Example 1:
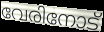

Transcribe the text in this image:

വേരിനോട്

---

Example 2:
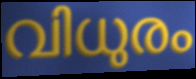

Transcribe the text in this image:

വിധുരം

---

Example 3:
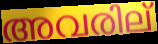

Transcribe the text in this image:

അവരില്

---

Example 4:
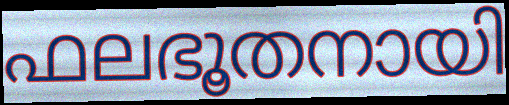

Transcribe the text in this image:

ഫലഭൂതനായി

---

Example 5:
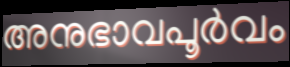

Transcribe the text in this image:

അനുഭാവപൂർവം